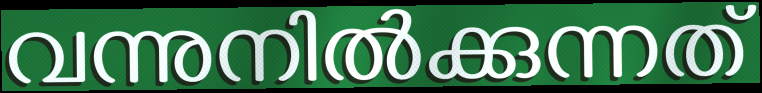
വന്നുനിൽക്കുന്നത്